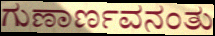
ಗುಣಾರ್ಣವನಂತು